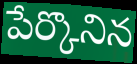
పేర్కొనిన